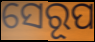
ସେରୂପ